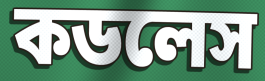
কডলেস